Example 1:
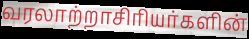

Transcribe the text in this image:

வரலாற்றாசிரியர்களின்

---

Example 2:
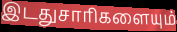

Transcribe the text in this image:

இடதுசாரிகளையும்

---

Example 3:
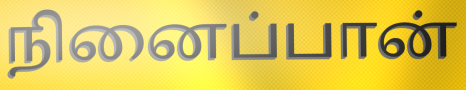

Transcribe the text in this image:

நினைப்பான்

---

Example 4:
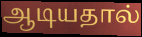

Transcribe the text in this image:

ஆடியதால்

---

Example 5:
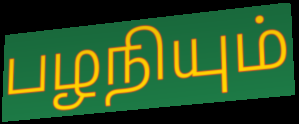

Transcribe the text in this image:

பழநியும்